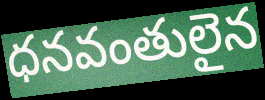
ధనవంతులైన